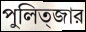
পুলিত্জার